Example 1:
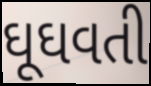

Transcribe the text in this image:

ઘૂઘવતી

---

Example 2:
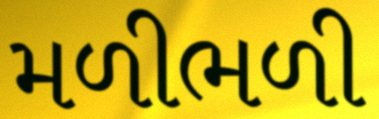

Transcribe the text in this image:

મળીભળી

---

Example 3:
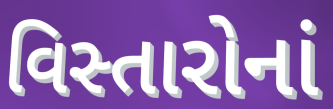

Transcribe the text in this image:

વિસ્તારોનાં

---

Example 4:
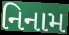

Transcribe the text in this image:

નિનામ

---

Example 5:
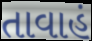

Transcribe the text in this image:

તાવાહં